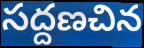
సద్దణచిన